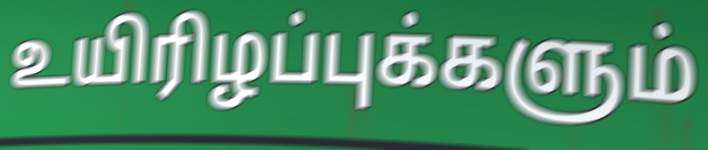
உயிரிழப்புக்களும்